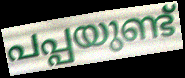
പപ്പയുണ്ട്